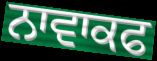
ਨਾਵਾਕਫ